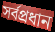
সৰ্বপ্ৰধান